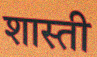
शास्ती